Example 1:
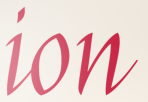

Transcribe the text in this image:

ion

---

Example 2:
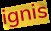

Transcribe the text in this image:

ignis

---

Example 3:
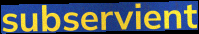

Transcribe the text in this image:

subservient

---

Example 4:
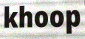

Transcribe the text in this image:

khoop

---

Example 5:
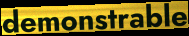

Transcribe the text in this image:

demonstrable